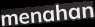
menahan